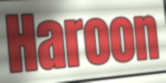
Haroon